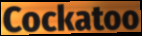
Cockatoo